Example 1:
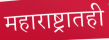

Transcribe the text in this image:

महाराष्ट्रातही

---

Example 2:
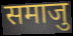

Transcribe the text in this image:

समाजु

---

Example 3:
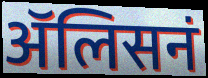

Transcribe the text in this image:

ॲलिसनं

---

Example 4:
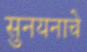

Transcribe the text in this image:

सुनयनाचे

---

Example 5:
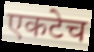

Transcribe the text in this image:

एकटेच